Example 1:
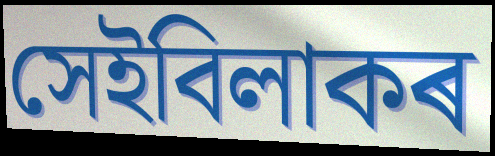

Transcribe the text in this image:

সেইবিলাকৰ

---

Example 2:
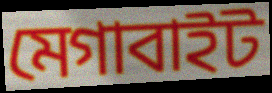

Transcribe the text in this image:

মেগাবাইট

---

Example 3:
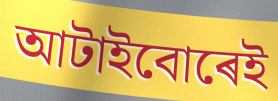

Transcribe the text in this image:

আটাইবোৰেই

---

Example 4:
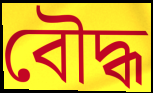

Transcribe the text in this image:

বৌদ্ধ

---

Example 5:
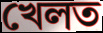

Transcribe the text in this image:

খেলত